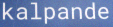
kalpande